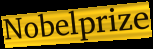
Nobelprize